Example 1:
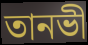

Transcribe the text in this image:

তানভী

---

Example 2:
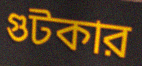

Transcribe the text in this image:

গুটকার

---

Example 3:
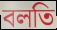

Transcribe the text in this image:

বলতি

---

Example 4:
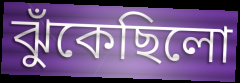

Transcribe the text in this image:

ঝুঁকেছিলো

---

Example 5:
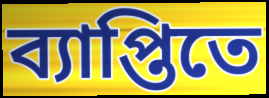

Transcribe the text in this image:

ব্যাপ্তিতে